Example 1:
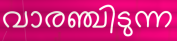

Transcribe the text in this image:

വാരഞ്ചിടുന്ന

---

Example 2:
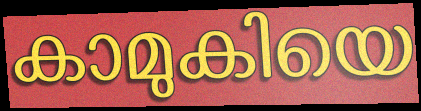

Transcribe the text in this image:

കാമുകിയെ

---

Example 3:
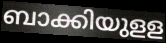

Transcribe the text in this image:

ബാക്കിയുളള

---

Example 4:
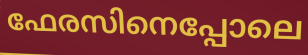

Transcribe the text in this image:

ഫേരസിനെപ്പോലെ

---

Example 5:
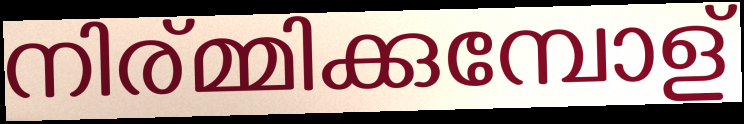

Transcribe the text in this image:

നിര്മ്മിക്കുമ്പോള്